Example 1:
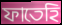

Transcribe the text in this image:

ফাতেহি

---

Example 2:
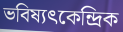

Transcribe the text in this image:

ভবিষ্যৎকেন্দ্রিক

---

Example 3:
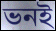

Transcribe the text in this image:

ভনই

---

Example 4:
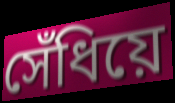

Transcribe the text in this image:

সেঁধিয়ে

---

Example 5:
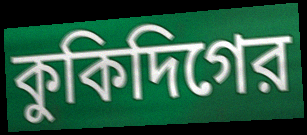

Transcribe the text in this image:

কুকিদিগের